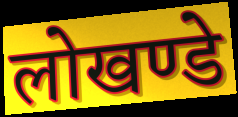
लोखण्डे